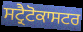
ਸਟ੍ਰੈਟੋਕਾਸਟਰ